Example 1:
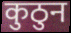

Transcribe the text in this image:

कुठुन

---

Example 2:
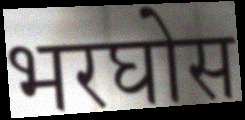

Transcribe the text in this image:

भरघोस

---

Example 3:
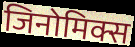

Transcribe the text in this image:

जिनोमिक्स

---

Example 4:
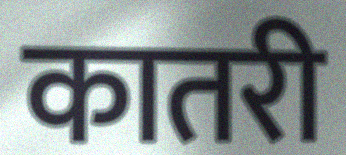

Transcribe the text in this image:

कातरी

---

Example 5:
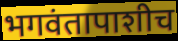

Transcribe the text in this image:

भगवंतापाशीच